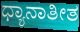
ಧ್ಯಾನಾತೀತ